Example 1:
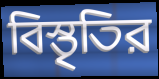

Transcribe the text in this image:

বিস্তৃতির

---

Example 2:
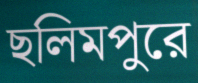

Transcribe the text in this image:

ছলিমপুরে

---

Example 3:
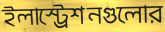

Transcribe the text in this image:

ইলাস্ট্রেশনগুলোর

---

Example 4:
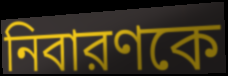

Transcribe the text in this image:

নিবারণকে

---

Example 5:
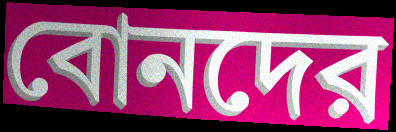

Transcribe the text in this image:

বোনদের